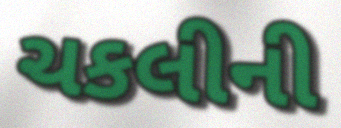
ચકલીની